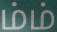
ம்ம்